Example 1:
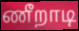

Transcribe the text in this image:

ணீறாடி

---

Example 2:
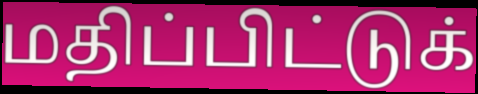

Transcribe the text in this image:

மதிப்பிட்டுக்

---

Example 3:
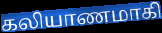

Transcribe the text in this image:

கலியாணமாகி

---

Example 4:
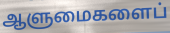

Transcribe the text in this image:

ஆளுமைகளைப்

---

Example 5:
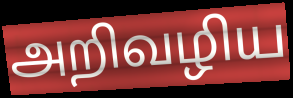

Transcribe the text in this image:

அறிவழிய